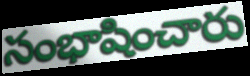
సంభాషించారు